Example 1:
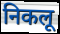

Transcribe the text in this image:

निकलू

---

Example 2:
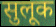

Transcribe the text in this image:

सुलूक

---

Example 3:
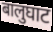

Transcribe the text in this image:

बालुघाट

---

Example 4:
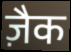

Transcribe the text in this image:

ज़ैक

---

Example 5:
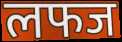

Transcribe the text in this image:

लफज